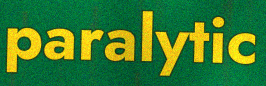
paralytic